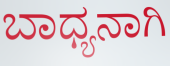
ಬಾಧ್ಯನಾಗಿ